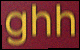
ghh